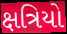
ક્ષત્રિયો